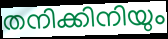
തനിക്കിനിയും